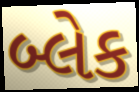
બ્લેક